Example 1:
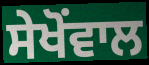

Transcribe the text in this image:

ਸੇਖੋਂਵਾਲ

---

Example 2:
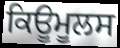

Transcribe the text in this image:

ਕਿਊਮੂਲਸ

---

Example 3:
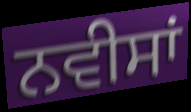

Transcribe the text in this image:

ਨਵੀਸਾਂ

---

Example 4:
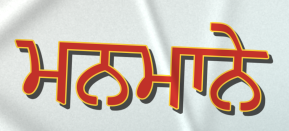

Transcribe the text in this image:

ਮਨਮਾਨੇ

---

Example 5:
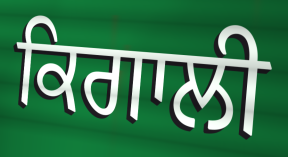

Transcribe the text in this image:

ਕਿਗਾਲੀ